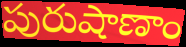
పురుషాణాం